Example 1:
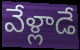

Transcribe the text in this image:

వేళ్లాడే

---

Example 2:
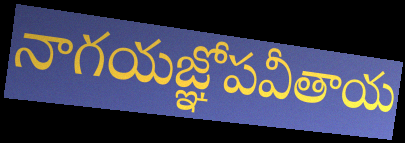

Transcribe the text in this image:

నాగయజ్ఞోపవీతాయ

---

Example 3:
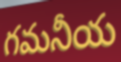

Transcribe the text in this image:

గమనీయ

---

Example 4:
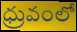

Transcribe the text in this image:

ధ్రువంలో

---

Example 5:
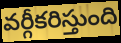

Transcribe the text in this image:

వర్గీకరిస్తుంది